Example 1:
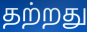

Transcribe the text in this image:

தற்றது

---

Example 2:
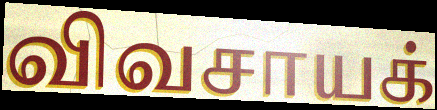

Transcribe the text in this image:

விவசாயக்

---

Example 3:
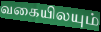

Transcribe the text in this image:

வகையிலயும்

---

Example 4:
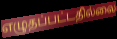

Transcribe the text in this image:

எழுதப்பட்டதில்லை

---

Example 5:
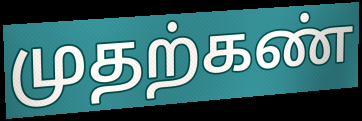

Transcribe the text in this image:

முதற்கண்